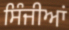
ਸਿੰਜੀਆਂ